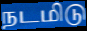
நடமிடு